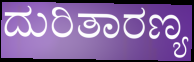
ದುರಿತಾರಣ್ಯ